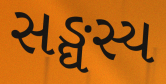
સઙ્ઘસ્ય